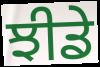
ਝੀਡੇ